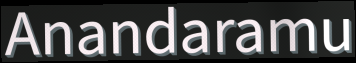
Anandaramu